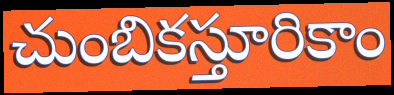
చుంబికస్తూరికాం